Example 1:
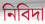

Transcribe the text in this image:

নিবিদা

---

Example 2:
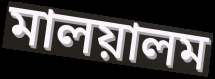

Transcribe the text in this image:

মালয়ালম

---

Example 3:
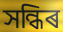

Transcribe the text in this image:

সন্ধিৰ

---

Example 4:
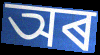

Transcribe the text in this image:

অৰ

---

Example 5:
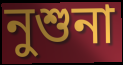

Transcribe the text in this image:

নুশুনা